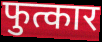
फुत्कार